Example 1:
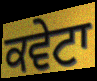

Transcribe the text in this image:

ਕਵੇਟਾ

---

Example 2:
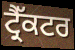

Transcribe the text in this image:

ਟ੍ਰੈੱਕਟਰ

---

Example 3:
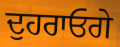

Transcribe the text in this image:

ਦੁਹਰਾਓਗੇ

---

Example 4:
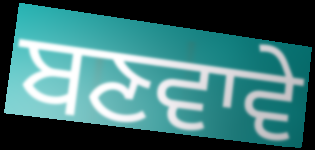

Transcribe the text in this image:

ਬਣਵਾਵੇ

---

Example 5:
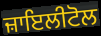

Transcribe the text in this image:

ਜ਼ਾਇਲੀਟੋਲ